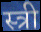
स्त्री